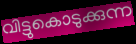
വിട്ടുകൊടുക്കുന്ന